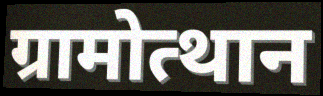
ग्रामोत्थान